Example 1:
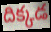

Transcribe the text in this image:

దిక్కడ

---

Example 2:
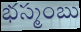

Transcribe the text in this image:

భస్మంబు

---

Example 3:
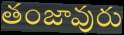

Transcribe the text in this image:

తంజావురు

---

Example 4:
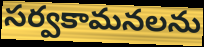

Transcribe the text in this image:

సర్వకామనలను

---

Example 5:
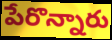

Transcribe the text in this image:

పేరొన్నారు